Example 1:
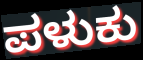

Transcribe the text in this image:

ಪಳುಕು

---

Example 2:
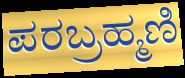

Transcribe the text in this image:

ಪರಬ್ರಹ್ಮಣಿ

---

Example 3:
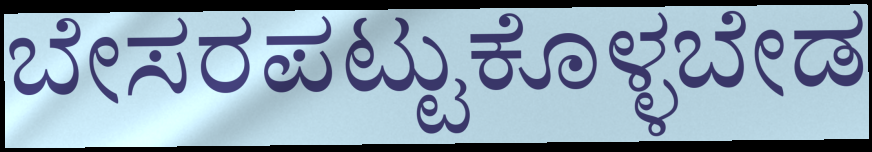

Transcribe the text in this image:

ಬೇಸರಪಟ್ಟುಕೊಳ್ಳಬೇಡ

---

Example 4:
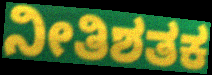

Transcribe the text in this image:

ನೀತಿಶತಕ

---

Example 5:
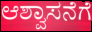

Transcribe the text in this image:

ಆಶ್ವಾಸನೆಗೆ